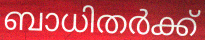
ബാധിതർക്ക്